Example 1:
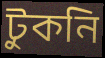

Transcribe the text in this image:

টুকনি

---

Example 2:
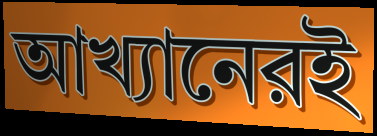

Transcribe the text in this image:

আখ্যানেরই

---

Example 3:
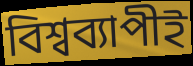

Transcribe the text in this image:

বিশ্বব্যাপীই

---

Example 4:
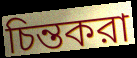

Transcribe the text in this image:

চিন্তকরা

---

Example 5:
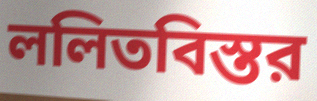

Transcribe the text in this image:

ললিতবিস্তর